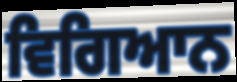
ਵਿਗਿਆਨ